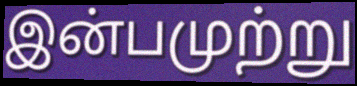
இன்பமுற்று